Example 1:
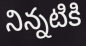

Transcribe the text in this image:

నిన్నటికి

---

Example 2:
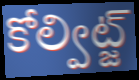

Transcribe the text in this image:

కోల్విట్జ్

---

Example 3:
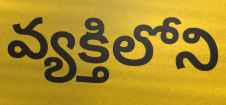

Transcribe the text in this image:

వ్యక్తిలోని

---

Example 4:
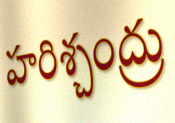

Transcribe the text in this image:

హరిశ్చంద్రు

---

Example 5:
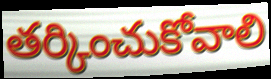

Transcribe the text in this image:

తర్కించుకోవాలి